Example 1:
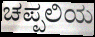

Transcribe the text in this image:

ಚಪ್ಪಲಿಯ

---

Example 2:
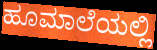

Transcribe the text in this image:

ಹೂಮಾಲೆಯಲ್ಲಿ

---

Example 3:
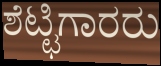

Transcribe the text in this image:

ಶೆಟ್ಟಿಗಾರರು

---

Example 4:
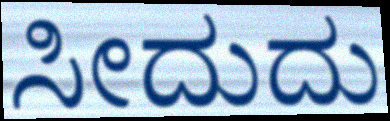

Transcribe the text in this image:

ಸೀದುದು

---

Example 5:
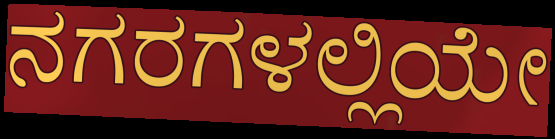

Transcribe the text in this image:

ನಗರಗಳಲ್ಲಿಯೇ